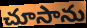
చూసాను